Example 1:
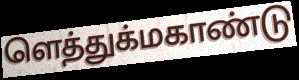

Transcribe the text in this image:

ளெத்துக்மகாண்டு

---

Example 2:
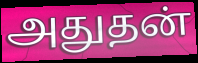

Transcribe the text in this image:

அதுதன்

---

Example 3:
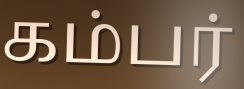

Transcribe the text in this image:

கம்பர்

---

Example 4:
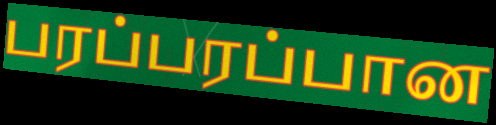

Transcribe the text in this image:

பரப்பரப்பான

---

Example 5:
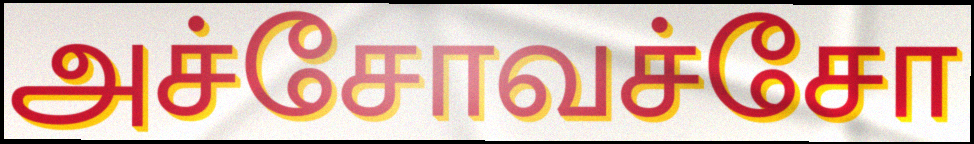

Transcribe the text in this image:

அச்சோவச்சோ